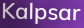
Kalpsar